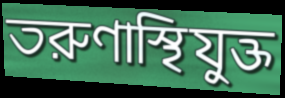
তরুণাস্থিযুক্ত